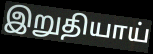
இறுதியாய்